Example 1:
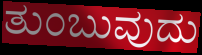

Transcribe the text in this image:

ತುಂಬುವುದು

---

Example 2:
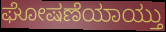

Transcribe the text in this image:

ಘೋಷಣೆಯಾಯ್ತು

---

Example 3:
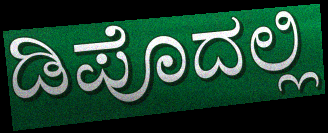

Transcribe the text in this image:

ಡಿಪೊದಲ್ಲಿ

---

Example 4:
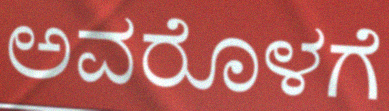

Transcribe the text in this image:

ಅವರೊಳಗೆ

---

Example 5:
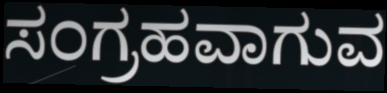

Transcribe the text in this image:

ಸಂಗ್ರಹವಾಗುವ